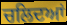
ਚਲਿਦਆਂ